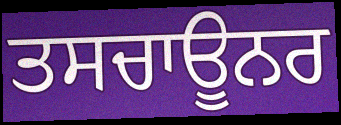
ਤਸਚਾਊਨਰ